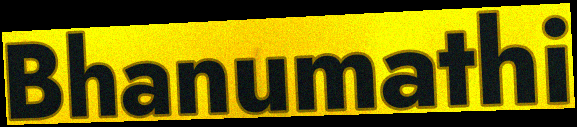
Bhanumathi